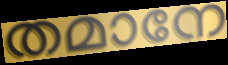
തമാനേ